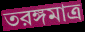
তরঙ্গমাত্র